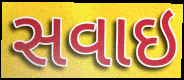
સવાઇ